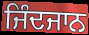
ਜਿੰਦਜਾਨ